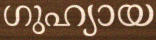
ഗുഹ്യായ